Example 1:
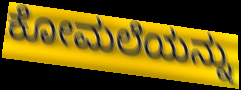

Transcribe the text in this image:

ಕೋಮಲೆಯನ್ನು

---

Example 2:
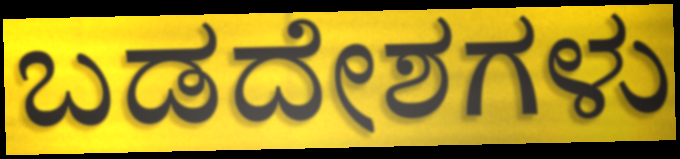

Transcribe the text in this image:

ಬಡದೇಶಗಳು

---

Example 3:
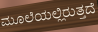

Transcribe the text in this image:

ಮೂಲೆಯಲ್ಲಿರುತ್ತದೆ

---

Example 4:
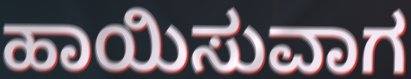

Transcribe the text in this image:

ಹಾಯಿಸುವಾಗ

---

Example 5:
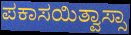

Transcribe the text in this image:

ಪಕಾಸಯಿತ್ವಾಸ್ಸಾ